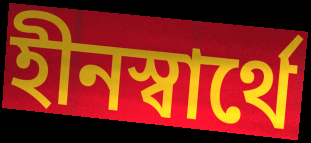
হীনস্বার্থে